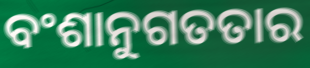
ବଂଶାନୁଗତତାର